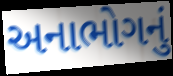
અનાભોગનું